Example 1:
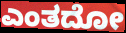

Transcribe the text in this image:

ಎಂತದೋ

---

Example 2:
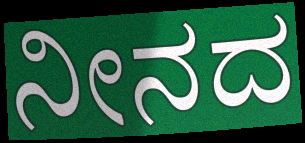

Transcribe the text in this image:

ನೀನದ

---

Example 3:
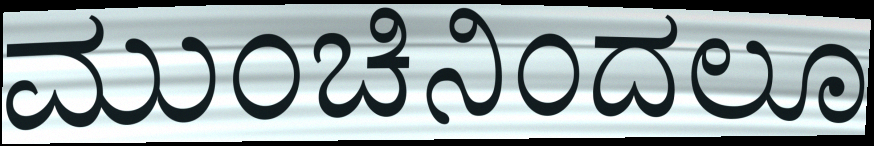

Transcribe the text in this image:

ಮುಂಚಿನಿಂದಲೂ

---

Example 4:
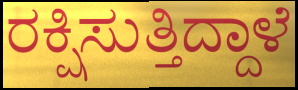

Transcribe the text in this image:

ರಕ್ಷಿಸುತ್ತಿದ್ದಾಳೆ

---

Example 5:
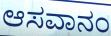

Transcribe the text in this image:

ಆಸವಾನಂ